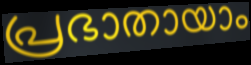
പ്രഭാതായാം